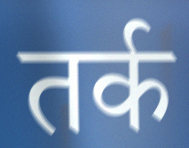
तर्क